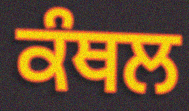
ਕੰਥਲ